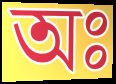
অঃ